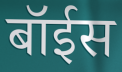
बॉईस